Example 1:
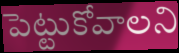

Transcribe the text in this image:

పెట్టుకోవాలని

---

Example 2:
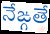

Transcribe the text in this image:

నేఙ్గతే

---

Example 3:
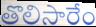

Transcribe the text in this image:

తొలిసారేం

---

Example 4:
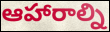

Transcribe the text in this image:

ఆహారాల్ని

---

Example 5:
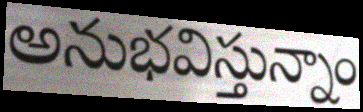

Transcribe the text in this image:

అనుభవిస్తున్నాం